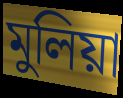
মুলিয়া